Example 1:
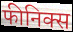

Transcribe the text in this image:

फीनिक्स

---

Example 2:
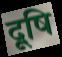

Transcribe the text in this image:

दूषि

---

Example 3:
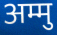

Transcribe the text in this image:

अम्मु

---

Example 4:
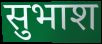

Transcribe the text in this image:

सुभाश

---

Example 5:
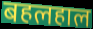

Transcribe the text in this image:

बहलहाल